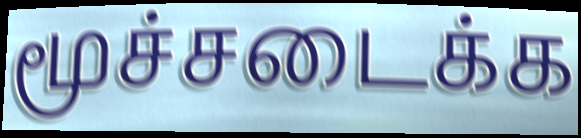
மூச்சடைக்க